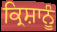
ਕ੍ਰਿਸ਼ਾਨੂੰ